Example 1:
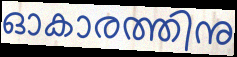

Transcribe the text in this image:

ഓകാരത്തിനു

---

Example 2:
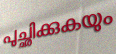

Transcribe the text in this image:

പുച്ഛിക്കുകയും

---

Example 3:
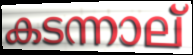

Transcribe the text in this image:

കടന്നാല്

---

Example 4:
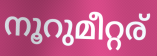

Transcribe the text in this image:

നൂറുമീറ്റര്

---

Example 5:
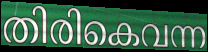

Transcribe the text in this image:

തിരികെവന്ന